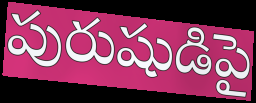
పురుషుడిపై